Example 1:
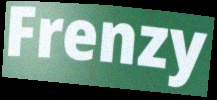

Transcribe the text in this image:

Frenzy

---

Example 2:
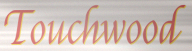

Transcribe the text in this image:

Touchwood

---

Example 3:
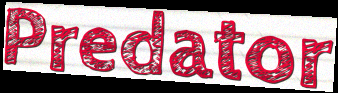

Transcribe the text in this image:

Predator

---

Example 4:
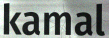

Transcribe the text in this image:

kamal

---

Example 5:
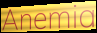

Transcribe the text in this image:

Anemia